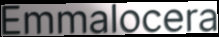
Emmalocera